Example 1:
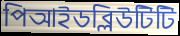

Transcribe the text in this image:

পিআইডব্লিউটিটি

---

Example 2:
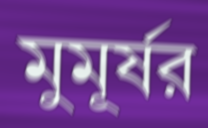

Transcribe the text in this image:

মুমূর্ষর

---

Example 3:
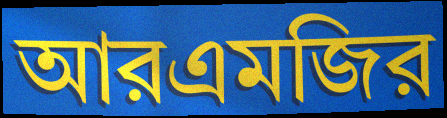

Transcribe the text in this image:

আরএমজির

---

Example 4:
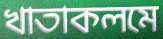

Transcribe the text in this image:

খাতাকলমে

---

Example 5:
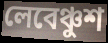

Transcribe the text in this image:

লেবেঞ্চুশ